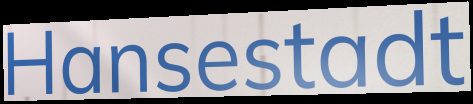
Hansestadt